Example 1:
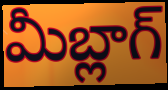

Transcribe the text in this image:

మీబ్లాగ్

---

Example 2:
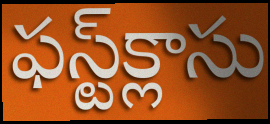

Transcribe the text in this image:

ఫస్ట్‌క్లాసు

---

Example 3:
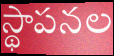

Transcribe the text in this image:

స్థాపనల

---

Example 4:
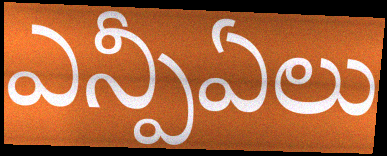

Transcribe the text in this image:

ఎన్పీఏలు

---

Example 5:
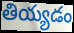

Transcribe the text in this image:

తియ్యడం